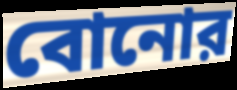
বোনোর